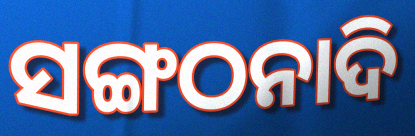
ସଙ୍ଗଠନାଦି